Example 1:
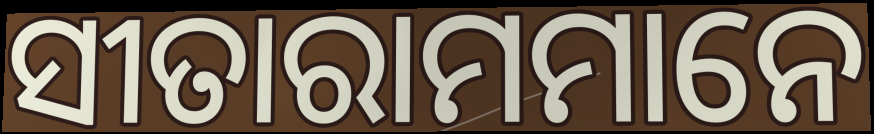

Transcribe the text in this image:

ସୀତାରାମମାନେ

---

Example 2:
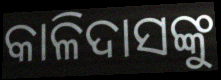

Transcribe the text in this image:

କାଳିଦାସଙ୍କୁ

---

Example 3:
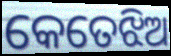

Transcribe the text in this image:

କେତେଝିଅ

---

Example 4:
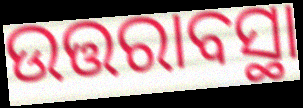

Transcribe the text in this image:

ଉତ୍ତରାବସ୍ଥା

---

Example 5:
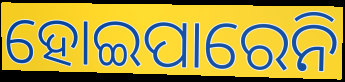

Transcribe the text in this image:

ହୋଇପାରେନି